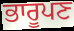
ਭਾਰੂਪਣ